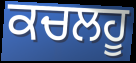
ਕਚਲਹੂ